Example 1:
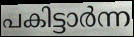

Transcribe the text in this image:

പകിട്ടാർന്ന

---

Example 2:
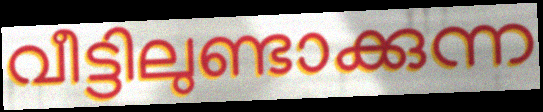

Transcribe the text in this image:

വീട്ടിലുണ്ടാക്കുന്ന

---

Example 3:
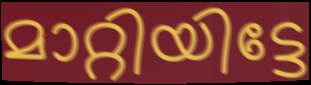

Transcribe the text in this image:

മാറ്റിയിട്ടേ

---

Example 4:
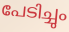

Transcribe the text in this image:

പേടിച്ചും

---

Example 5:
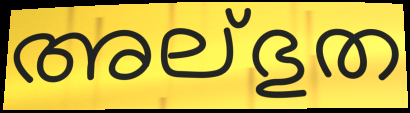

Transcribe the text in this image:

അല്ഭുത